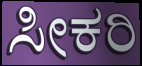
ಸೀಕರಿ